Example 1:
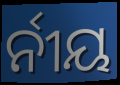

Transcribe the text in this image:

ର୍ନୀୟ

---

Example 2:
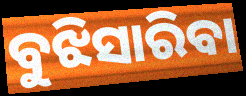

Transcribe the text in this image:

ବୁଝିସାରିବା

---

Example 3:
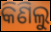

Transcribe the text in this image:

କିଣିଲୁ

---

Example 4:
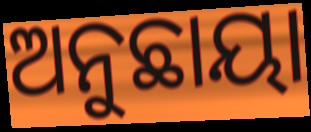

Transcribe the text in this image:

ଅନୁଛାୟା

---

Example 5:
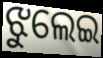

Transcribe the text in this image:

ଝୁଲେଇ